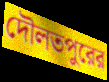
দৌলতপুরের